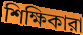
শিক্ষিকারা